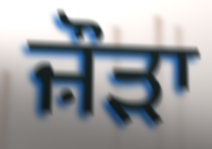
ਜ਼ੌੜਾ